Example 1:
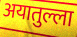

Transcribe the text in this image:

अयातुल्ला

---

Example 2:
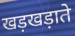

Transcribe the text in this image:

खड़खड़ाते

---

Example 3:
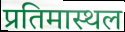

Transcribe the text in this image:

प्रतिमास्थल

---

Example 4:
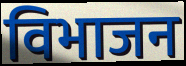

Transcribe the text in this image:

विभाजन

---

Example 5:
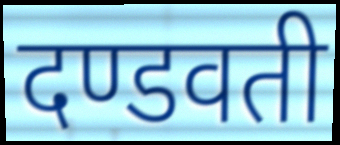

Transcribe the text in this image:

दण्डवती